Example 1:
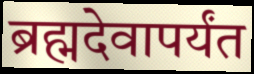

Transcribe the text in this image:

ब्रह्मदेवापर्यंत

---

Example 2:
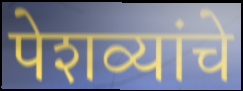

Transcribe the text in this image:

पेशव्यांचे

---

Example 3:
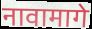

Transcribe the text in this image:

नावामागे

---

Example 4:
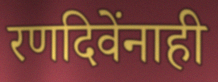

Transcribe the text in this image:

रणदिवेंनाही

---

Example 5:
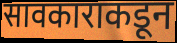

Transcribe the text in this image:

सावकाराकडून